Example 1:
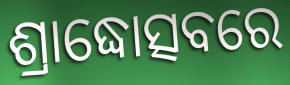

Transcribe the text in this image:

ଶ୍ରାଦ୍ଧୋତ୍ସବରେ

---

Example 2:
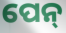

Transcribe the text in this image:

ପେନ୍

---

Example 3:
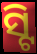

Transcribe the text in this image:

ସ୍ଟି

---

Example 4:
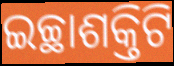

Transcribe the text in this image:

ଇଚ୍ଛାଶକ୍ତିଟି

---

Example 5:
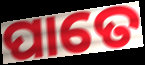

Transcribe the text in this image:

ପାତେ